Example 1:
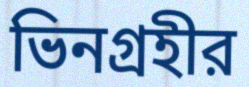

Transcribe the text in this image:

ভিনগ্রহীর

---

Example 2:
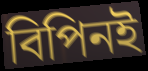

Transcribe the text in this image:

বিপিনই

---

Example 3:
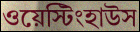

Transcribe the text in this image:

ওয়েস্টিংহাউস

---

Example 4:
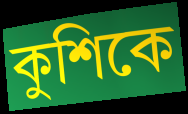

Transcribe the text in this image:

কুশিকে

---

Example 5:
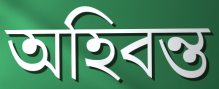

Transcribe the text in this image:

অহিবন্ত